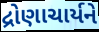
દ્રોણાચાર્યને